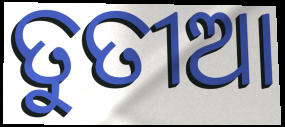
ତୁତୀଆ